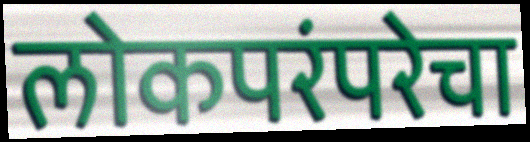
लोकपरंपरेचा